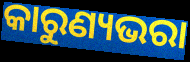
କାରୁଣ୍ୟଭରା